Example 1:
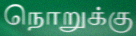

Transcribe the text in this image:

நொறுக்கு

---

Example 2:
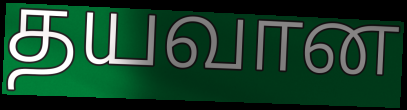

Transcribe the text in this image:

தயவான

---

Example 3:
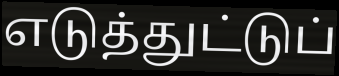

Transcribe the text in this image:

எடுத்துட்டுப்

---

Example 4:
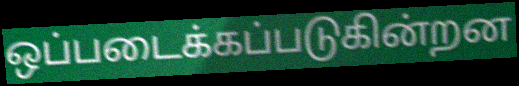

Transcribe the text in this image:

ஒப்படைக்கப்படுகின்றன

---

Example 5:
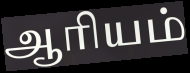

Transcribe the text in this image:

ஆரியம்